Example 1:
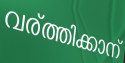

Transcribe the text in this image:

വര്ത്തിക്കാന്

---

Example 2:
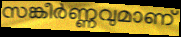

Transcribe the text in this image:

സങ്കീർണ്ണവുമാണ്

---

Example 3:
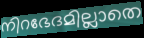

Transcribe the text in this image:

നിറഭേദമില്ലാതെ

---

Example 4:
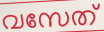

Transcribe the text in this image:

വസേത്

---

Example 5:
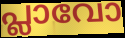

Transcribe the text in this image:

പ്ലാവോ